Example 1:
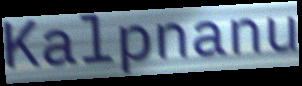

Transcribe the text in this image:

Kalpnanu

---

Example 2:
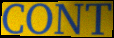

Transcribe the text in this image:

CONT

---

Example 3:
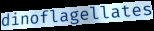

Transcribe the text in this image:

dinoflagellates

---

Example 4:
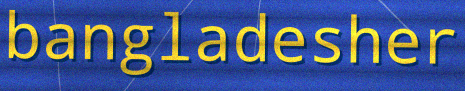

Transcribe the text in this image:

bangladesher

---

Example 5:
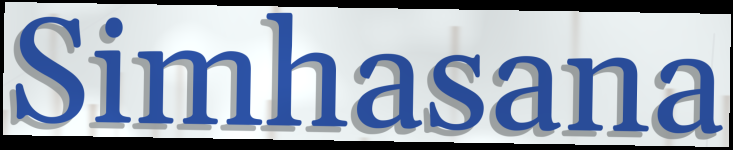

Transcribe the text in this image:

Simhasana